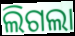
ଲିଗଲା